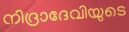
നിദ്രാദേവിയുടെ